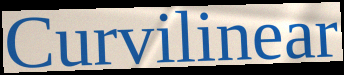
Curvilinear